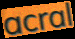
acral